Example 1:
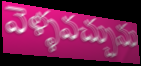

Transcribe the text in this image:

వెళ్ళవచ్చును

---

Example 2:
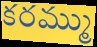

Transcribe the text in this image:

కరమ్ము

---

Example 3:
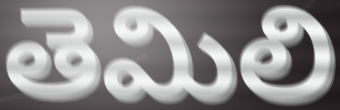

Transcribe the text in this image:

తెమిలి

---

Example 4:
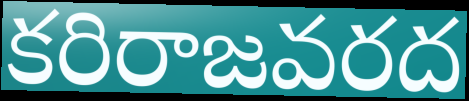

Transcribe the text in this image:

కరిరాజవరద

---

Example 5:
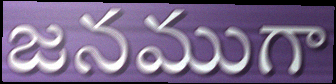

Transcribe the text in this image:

జనముగా